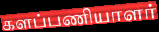
களப்பணியாளர்